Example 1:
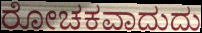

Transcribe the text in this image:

ರೋಚಕವಾದುದು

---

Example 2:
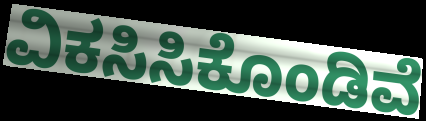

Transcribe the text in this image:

ವಿಕಸಿಸಿಕೊಂಡಿವೆ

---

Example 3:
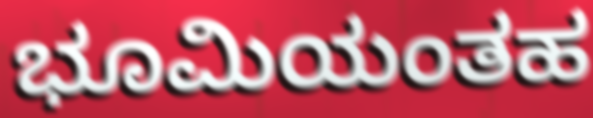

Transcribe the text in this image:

ಭೂಮಿಯಂತಹ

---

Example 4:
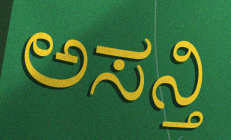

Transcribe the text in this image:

ಅಸನ್ತಿ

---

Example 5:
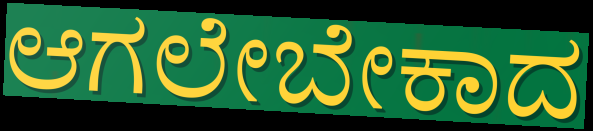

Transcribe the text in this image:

ಆಗಲೇಬೇಕಾದ